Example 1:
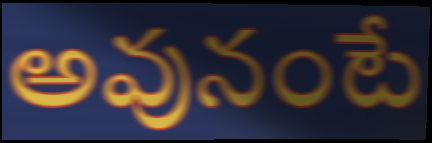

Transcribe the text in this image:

అవునంటే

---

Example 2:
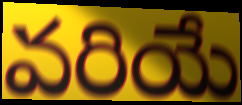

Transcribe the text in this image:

వరియే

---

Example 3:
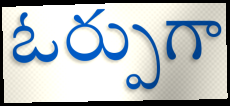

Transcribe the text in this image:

ఓర్పుగా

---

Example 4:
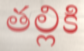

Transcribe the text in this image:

తల్లికి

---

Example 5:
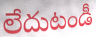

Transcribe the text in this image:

లేదుటండీ